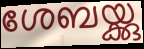
ശേബയ്ക്കു